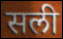
सली